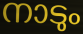
നാടും